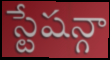
స్టేషన్గా